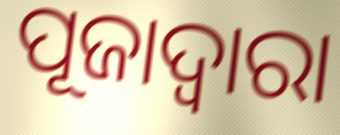
ପୂଜାଦ୍ଵାରା